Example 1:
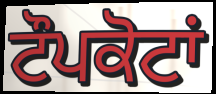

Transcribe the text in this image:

ਟੌਪਕੋਟਾਂ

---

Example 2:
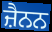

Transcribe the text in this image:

ਜ਼ੈਨਨ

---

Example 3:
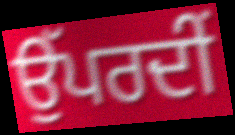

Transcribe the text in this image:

ਉੱਪਰਦੀਂ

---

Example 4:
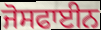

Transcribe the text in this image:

ਜੋਸਫਾਈਨ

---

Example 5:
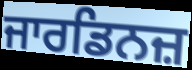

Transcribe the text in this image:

ਜਾਰਡਿਨਜ਼